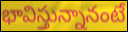
భావిస్తున్నానంటే